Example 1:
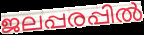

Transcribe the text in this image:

ജലപ്പരപ്പിൽ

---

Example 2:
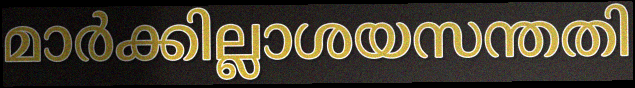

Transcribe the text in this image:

മാർക്കില്ലാശയസന്തതി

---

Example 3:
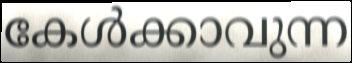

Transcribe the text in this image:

കേൾക്കാവുന്ന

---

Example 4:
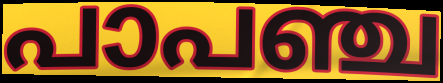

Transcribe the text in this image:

പാപഞ്ച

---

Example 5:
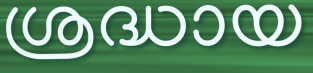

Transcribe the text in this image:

ശ്രദ്ധായ